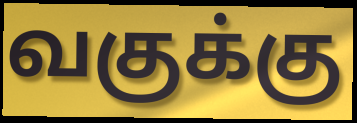
வகுக்கு